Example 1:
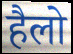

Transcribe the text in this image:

हैलो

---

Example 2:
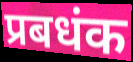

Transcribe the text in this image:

प्रबधंक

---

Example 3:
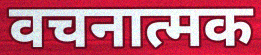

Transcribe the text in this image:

वचनात्मक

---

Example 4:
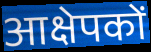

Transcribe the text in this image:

आक्षेपकों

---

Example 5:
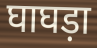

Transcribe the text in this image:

घाघड़ा